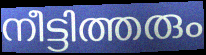
നീട്ടിത്തരും